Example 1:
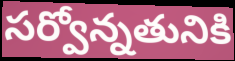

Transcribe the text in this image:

సర్వోన్నతునికి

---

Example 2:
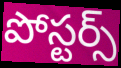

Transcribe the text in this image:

పోస్టర్స్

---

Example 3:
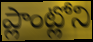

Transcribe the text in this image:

ప్లాంట్లోని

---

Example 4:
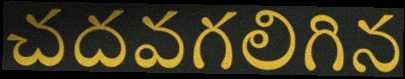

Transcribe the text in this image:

చదవగలిగిన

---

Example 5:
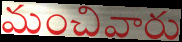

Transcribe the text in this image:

మంచివారు